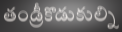
తండ్రీకొడుకుల్ని